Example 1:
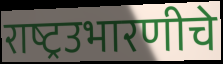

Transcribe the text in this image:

राष्ट्रउभारणीचे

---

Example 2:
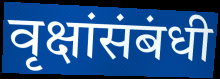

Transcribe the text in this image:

वृक्षांसंबंधी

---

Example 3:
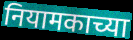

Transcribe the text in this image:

नियामकाच्या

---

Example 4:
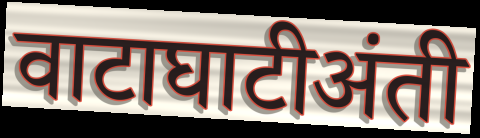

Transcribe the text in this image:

वाटाघाटीअंती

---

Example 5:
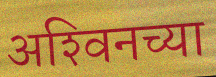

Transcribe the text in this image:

अश्विनच्या